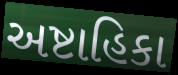
અષ્ટાહિકા